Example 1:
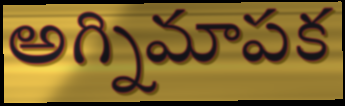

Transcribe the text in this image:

అగ్నిమాపక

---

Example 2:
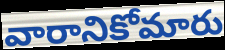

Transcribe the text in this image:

వారానికోమారు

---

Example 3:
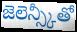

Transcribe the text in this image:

జెలెన్స్కీతో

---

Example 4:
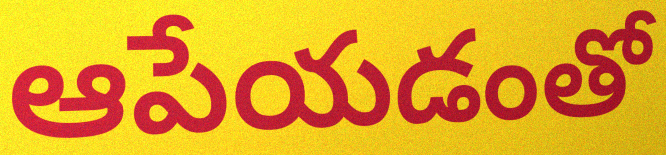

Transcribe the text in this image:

ఆపేయడంతో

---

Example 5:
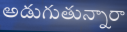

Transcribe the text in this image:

అడుగుతున్నారా